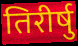
तिरीर्षु